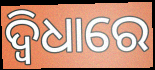
ଦ୍ୱିଧାରେ